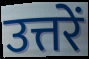
उत्तरें